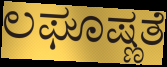
ಲಘೂಷ್ಣತೆ